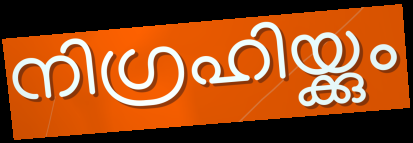
നിഗ്രഹിയ്ക്കും